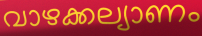
വാഴക്കല്യാണം